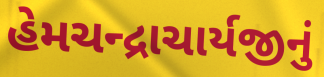
હેમચન્દ્રાચાર્યજીનું